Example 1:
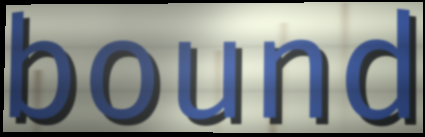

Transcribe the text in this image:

bound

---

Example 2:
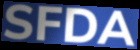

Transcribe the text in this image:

SFDA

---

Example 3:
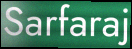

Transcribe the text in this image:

Sarfaraj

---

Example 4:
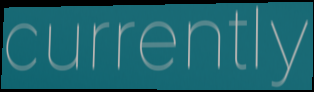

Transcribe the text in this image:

currently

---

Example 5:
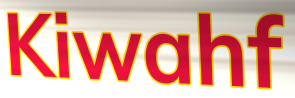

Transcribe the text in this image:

Kiwahf